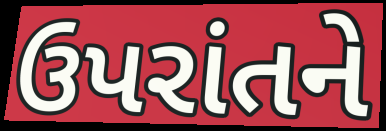
ઉપરાંતને